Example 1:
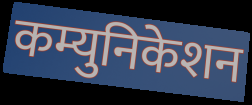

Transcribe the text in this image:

कम्युनिकेशन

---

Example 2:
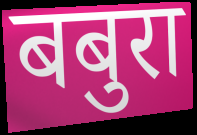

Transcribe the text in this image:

बबुरा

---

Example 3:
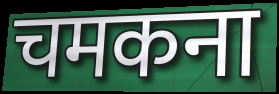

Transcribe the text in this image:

चमकना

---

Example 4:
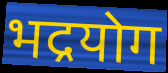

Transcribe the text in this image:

भद्रयोग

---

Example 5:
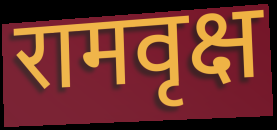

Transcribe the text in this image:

रामवृक्ष